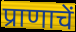
प्राणाचें